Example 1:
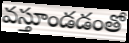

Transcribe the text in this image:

వస్తూండడంతో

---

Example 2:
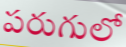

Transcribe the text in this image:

పరుగులో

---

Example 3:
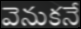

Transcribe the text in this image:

వెనుకనే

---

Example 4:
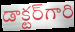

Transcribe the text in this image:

డాక్టర్‌గారి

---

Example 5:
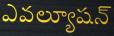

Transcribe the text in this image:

ఎవల్యూషన్